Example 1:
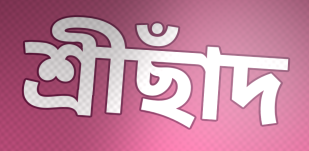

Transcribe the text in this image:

শ্রীছাঁদ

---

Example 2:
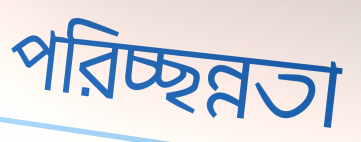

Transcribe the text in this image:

পরিচ্ছন্নতা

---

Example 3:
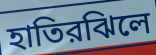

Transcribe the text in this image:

হাতিরঝিলে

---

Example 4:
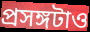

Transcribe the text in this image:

প্রসঙ্গটাও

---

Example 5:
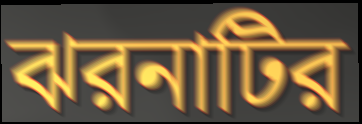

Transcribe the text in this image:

ঝরনাটির